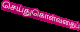
செய்துகொள்வதைப்